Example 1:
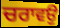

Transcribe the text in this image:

ਚਰਾਵਉ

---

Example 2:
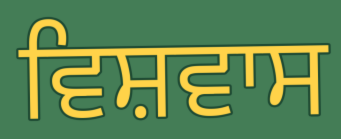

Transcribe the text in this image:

ਵਿਸ਼ਵਾਸ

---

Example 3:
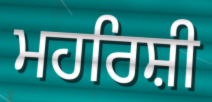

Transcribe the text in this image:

ਮਹਰਿਸ਼ੀ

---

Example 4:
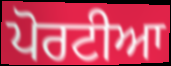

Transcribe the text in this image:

ਪੋਰਟੀਆ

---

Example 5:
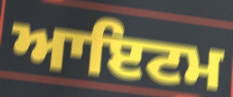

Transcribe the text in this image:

ਆਇਟਮ